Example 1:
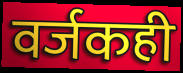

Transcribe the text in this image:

वर्जकही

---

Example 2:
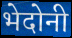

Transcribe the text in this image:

भेदोनी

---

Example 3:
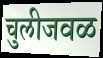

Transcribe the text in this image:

चुलीजवळ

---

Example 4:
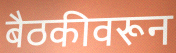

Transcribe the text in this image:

बैठकीवरून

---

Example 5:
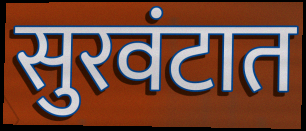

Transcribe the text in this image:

सुरवंटात